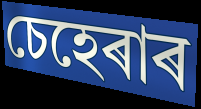
চেহেৰাৰ